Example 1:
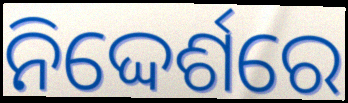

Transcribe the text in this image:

ନିଦ୍ଦେର୍ଶରେ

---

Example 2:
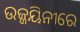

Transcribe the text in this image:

ଉଜ୍ଜୟିନୀରେ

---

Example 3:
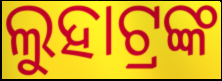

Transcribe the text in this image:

ଲୁହାଟ୍ରଙ୍କ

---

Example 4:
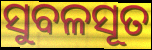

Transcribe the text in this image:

ସୁବଳସୂତ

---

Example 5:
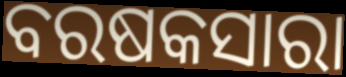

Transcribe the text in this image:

ବରଷକସାରା